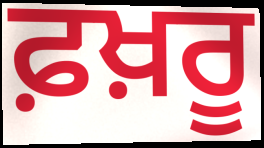
ਫ਼ਖ਼ਰੂ